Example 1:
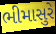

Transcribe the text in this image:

ભીમાસુરે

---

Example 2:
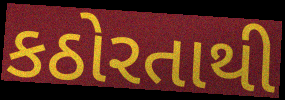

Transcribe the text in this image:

કઠોરતાથી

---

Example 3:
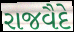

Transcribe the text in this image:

રાજવૈદે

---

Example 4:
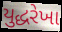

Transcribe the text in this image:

યુદ્ધરેખા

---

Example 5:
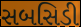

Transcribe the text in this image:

સબસિડી